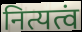
नित्यत्वं